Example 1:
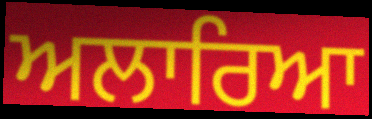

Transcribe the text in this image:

ਅਲਾਰਿਆ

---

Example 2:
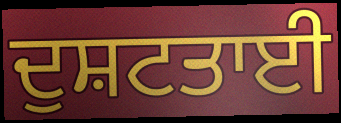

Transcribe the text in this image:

ਦੁਸ਼ਟਤਾਈ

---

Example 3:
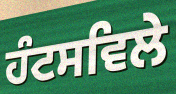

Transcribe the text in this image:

ਹੰਟਸਵਿਲੇ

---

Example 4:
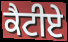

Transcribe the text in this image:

ਕੈਟੀਏ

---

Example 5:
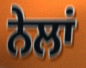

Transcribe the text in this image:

ਨੇਲਾਂ